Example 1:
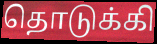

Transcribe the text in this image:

தொடுக்கி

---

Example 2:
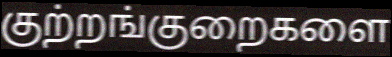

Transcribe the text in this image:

குற்றங்குறைகளை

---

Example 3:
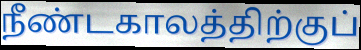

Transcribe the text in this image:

நீண்டகாலத்திற்குப்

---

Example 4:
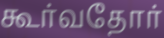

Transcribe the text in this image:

கூர்வதோர்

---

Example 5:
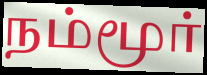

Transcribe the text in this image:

நம்மூர்